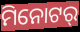
ମିନୋଟର୍